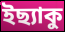
ইছ্যাকু